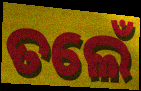
ତଲେଁ